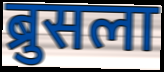
ब्रुसला